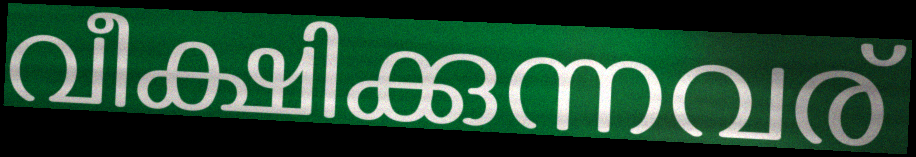
വീക്ഷിക്കുന്നവര്